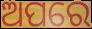
ଅପରେ